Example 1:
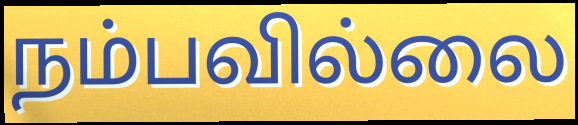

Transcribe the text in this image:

நம்பவில்லை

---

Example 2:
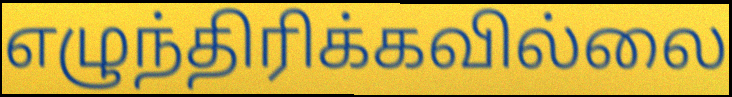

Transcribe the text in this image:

எழுந்திரிக்கவில்லை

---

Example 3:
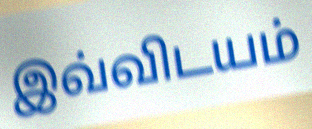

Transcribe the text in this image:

இவ்விடயம்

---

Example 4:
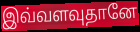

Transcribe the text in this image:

இவ்வளவுதானே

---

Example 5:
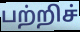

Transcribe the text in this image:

பற்றிச்